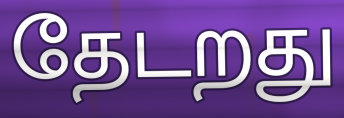
தேடறது